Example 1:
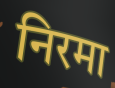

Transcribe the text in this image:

निरमा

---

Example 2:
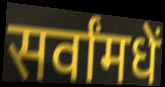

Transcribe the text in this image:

सर्वांमधें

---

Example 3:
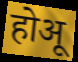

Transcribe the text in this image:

होअू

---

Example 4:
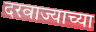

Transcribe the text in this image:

दरवाज्याच्या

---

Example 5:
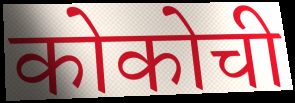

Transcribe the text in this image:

कोकोची